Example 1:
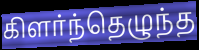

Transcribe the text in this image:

கிளர்ந்தெழுந்த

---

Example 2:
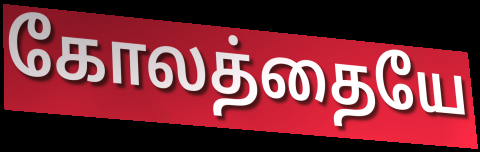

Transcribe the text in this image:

கோலத்தையே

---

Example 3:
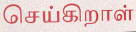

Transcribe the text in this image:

செய்கிறாள்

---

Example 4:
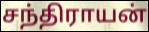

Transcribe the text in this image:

சந்திராயன்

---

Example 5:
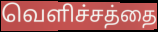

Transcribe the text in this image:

வெளிச்சத்தை